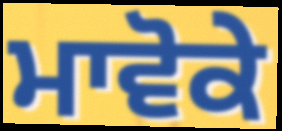
ਮਾਵੋਕੇ